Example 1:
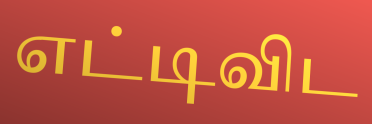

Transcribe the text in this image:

எட்டிவிட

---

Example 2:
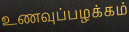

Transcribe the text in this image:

உணவுப்பழக்கம்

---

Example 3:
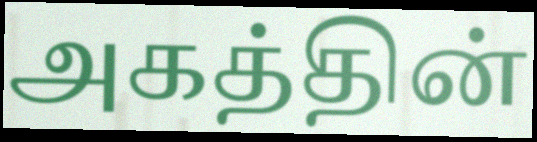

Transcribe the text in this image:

அகத்தின்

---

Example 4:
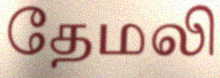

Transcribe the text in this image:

தேமலி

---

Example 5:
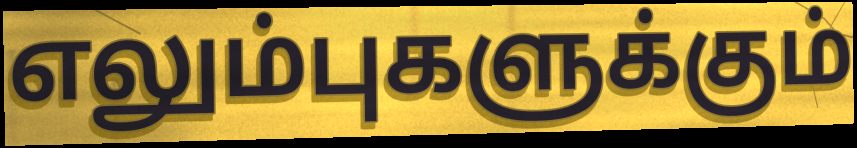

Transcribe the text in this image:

எலும்புகளுக்கும்